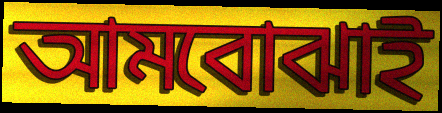
আমবোঝাই